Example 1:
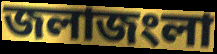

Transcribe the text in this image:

জলাজংলা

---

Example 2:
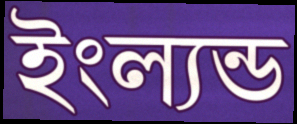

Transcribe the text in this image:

ইংল্যন্ড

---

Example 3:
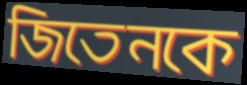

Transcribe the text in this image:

জিতেনকে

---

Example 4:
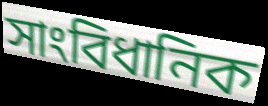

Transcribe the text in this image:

সাংবিধানিক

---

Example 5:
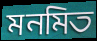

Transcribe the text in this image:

মনমিত